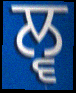
ਲ੍ਵ